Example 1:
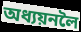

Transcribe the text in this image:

অধ্যয়নলৈ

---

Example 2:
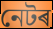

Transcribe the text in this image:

নেটৰ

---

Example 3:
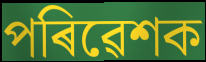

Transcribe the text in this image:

পৰিৱেশক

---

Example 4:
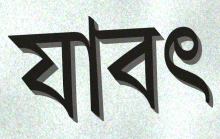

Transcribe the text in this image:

যাবৎ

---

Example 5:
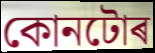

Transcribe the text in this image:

কোনটোৰ